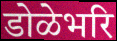
डोळेभरि